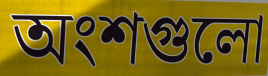
অংশগুলো